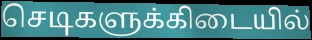
செடிகளுக்கிடையில்